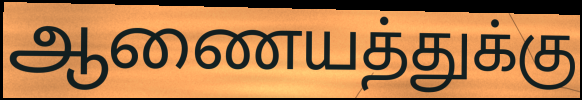
ஆணையத்துக்கு